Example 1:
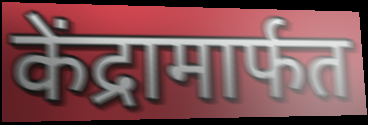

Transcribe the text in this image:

केंद्रामार्फत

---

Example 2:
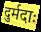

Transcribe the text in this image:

दुर्मदाः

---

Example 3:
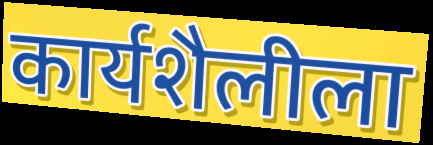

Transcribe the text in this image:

कार्यशैलीला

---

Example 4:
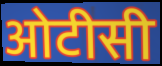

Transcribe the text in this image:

ओटीसी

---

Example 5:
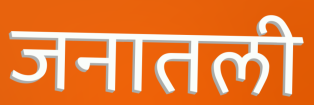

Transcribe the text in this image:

जनातली